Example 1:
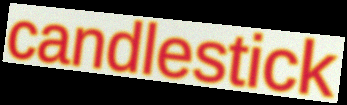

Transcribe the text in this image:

candlestick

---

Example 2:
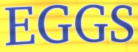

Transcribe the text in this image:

EGGS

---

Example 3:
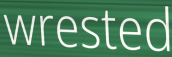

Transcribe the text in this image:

wrested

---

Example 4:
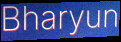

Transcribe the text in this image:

Bharyun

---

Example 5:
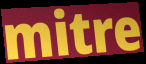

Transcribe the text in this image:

mitre